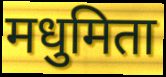
मधुमिता